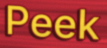
Peek